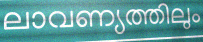
ലാവണ്യത്തിലും